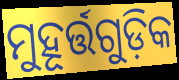
ମୁହୂର୍ତ୍ତଗୁଡ଼ିକ